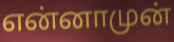
என்னாமுன்